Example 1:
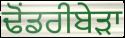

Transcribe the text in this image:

ਢੋਂਡਰੀਬੇੜਾ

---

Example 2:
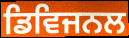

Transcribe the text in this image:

ਡਿਵਿਜਨਲ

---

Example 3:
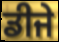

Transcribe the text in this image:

ਡੀਜੇ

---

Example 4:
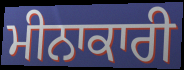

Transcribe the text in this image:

ਮੀਨਾਕਾਰੀ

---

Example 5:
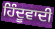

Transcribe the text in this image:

ਹਿੰਦੂਵਾਦੀ